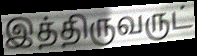
இத்திருவருட்